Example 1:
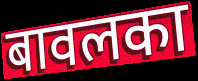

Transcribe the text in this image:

बावलका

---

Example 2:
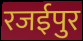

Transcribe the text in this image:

रजईपुर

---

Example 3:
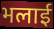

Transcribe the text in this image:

भलाई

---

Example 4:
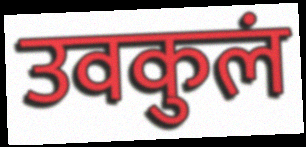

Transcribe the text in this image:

उवकुलं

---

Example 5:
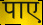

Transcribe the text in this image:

पाए